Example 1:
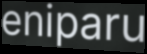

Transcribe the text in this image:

eniparu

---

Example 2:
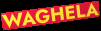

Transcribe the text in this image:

WAGHELA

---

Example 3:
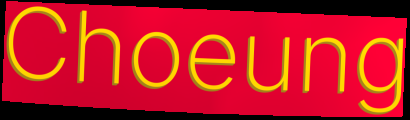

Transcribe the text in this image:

Choeung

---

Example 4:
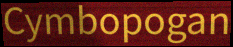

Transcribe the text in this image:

Cymbopogan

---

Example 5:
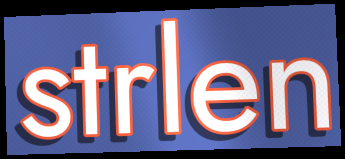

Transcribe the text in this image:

strlen